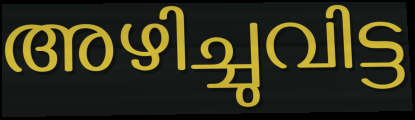
അഴിച്ചുവിട്ട